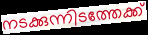
നടക്കുന്നിടത്തേക്ക്